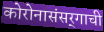
कोरोनासंसर्गाची